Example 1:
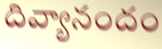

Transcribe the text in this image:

దివ్యానందం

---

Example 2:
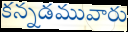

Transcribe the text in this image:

కన్నడమువారు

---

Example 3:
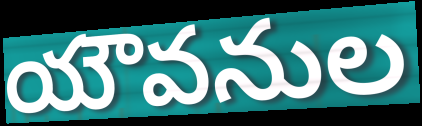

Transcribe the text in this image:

యౌవనుల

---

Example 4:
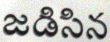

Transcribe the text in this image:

జడిసిన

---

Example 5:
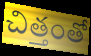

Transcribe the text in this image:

చిత్తంతో